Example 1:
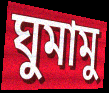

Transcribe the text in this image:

ঘুমামু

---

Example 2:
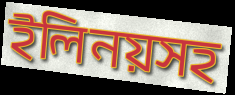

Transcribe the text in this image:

ইলিনয়সহ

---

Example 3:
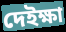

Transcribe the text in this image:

দেইক্ষা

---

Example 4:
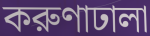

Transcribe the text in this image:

করুণাঢালা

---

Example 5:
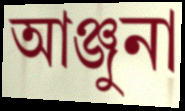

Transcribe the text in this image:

আঞ্জুনা